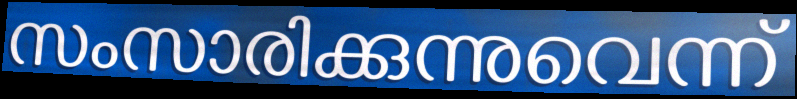
സംസാരിക്കുന്നുവെന്ന്